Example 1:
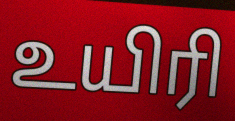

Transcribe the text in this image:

உயிரி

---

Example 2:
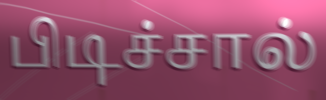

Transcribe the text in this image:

பிடிச்சால்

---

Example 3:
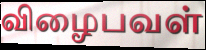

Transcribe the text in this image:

விழைபவள்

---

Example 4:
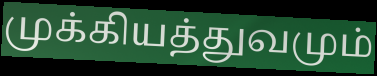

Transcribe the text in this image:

முக்கியத்துவமும்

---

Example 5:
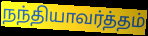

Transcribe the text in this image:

நந்தியாவர்த்தம்